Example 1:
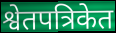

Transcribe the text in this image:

श्वेतपत्रिकेत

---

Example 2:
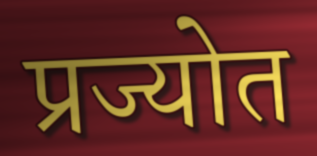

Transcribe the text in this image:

प्रज्योत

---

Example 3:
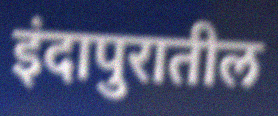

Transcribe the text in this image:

इंदापुरातील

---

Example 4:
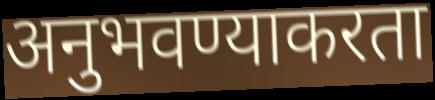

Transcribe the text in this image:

अनुभवण्याकरता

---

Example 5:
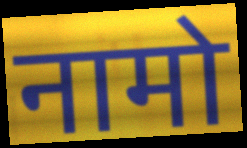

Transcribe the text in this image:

नामो